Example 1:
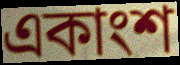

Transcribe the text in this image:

একাংশ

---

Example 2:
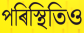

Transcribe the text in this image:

পৰিস্থিতিও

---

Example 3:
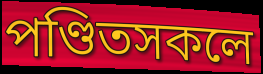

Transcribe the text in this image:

পণ্ডিতসকলে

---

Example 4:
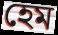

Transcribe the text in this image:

হেম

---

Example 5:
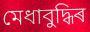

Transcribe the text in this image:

মেধাবুদ্ধিৰ